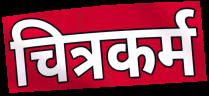
चित्रकर्म